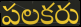
పలకరు